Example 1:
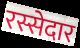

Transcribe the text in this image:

रस्सेदार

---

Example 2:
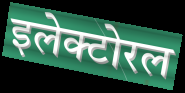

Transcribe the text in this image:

इलेक्टोरल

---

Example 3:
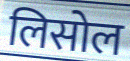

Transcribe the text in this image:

लिसोल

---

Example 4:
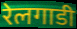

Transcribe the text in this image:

रेलगाडी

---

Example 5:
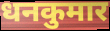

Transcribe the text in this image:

धनकुमार